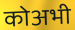
कोअभी